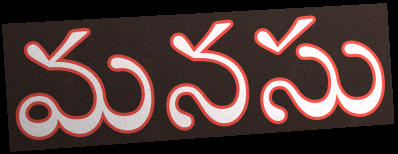
మనసు